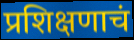
प्रशिक्षणाचं